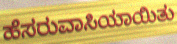
ಹೆಸರುವಾಸಿಯಾಯಿತು